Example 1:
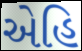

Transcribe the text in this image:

એહિ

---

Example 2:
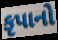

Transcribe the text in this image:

કૃપાનો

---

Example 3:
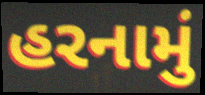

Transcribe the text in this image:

હરનામું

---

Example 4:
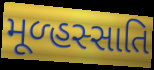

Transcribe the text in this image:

મૂળ્હસ્સાતિ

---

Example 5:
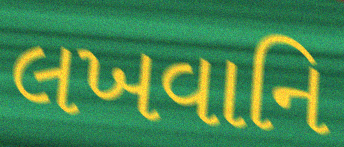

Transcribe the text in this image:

લખવાનિ